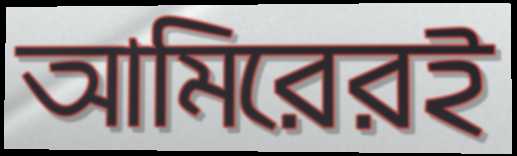
আমিরেরই